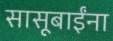
सासूबाईंना